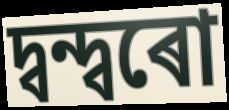
দ্বন্দ্বৰো